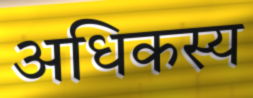
अधिकस्य